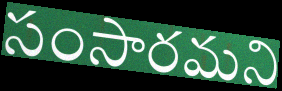
సంసారమని